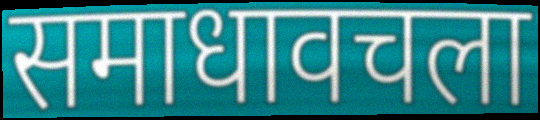
समाधावचला